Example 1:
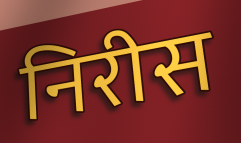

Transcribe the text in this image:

निरीस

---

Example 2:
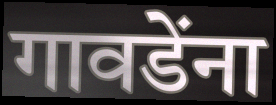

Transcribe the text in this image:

गावडेंना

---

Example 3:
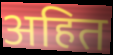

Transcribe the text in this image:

अहित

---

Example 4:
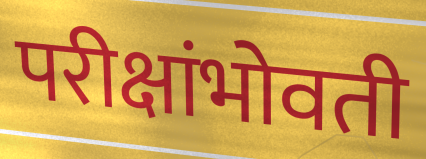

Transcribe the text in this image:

परीक्षांभोवती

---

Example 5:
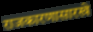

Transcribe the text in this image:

राजकारणासारखे